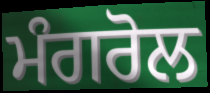
ਮੰਗਰੋਲ